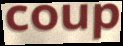
coup